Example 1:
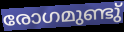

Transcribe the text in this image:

രോഗമുണ്ടു്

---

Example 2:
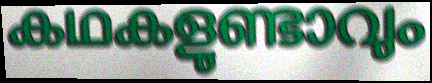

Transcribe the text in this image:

കഥകളുണ്ടാവും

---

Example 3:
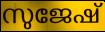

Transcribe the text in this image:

സുജേഷ്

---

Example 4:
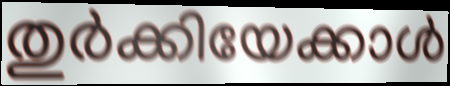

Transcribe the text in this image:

തുർക്കിയേക്കാൾ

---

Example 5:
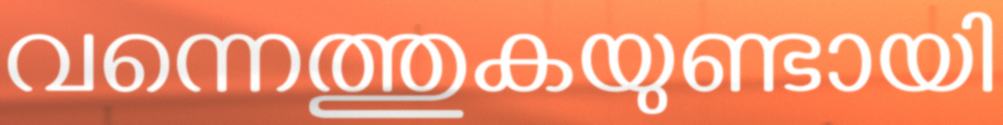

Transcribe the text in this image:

വന്നെത്തുകയുണ്ടായി